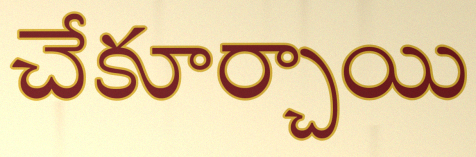
చేకూర్చాయి